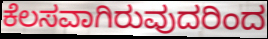
ಕೆಲಸವಾಗಿರುವುದರಿಂದ